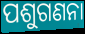
ପଶୁଗଣନା